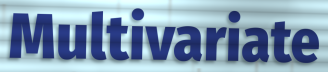
Multivariate